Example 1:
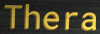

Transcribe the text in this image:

Thera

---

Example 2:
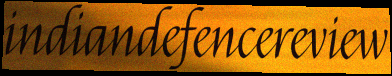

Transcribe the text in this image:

indiandefencereview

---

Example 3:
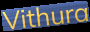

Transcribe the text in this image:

Vithura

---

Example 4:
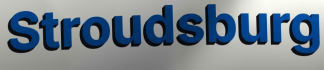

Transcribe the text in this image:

Stroudsburg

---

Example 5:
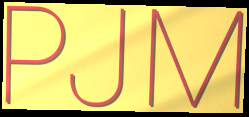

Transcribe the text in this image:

PJM